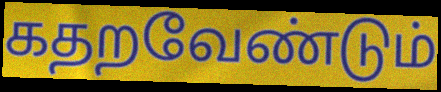
கதறவேண்டும்